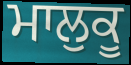
ਮਾਲੁਕੂ